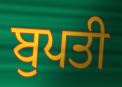
ਬੁਪਤੀ